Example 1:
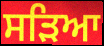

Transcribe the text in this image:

ਸੜਿਆ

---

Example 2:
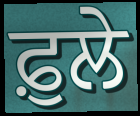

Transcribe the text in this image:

ਫ਼ੁਲੇ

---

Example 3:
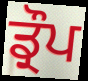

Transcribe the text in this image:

ਡ੍ਰੌਪ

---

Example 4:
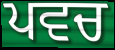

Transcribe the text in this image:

ਪਵਚ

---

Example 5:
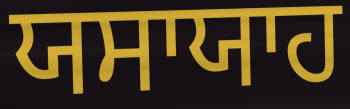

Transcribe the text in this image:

ਯਸਾਯਾਹ